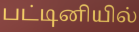
பட்டினியில்